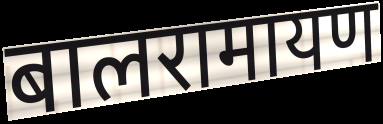
बालरामायण